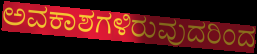
ಅವಕಾಶಗಳಿರುವುದರಿಂದ